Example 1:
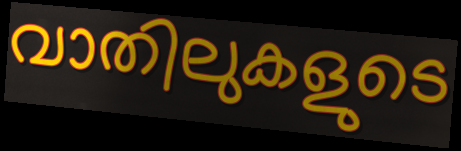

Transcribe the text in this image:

വാതിലുകളുടെ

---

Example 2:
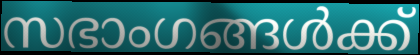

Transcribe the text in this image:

സഭാംഗങ്ങൾക്ക്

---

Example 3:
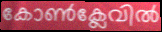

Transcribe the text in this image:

കോൺക്ലേവിൽ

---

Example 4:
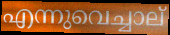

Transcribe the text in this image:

എന്നുവെച്ചാല്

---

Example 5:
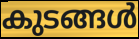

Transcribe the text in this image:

കുടങ്ങൾ